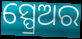
ସ୍ପ୍ରେଅର